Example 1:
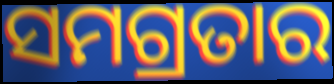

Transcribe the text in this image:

ସମଗ୍ରତାର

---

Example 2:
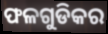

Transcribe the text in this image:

ଫଳଗୁଡିକର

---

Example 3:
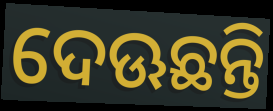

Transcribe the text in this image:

ଦେଊଛନ୍ତି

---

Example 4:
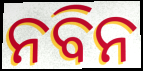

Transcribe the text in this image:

ନବିନ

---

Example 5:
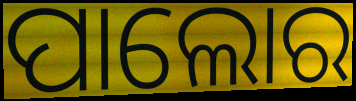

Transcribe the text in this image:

ପାଲୋର